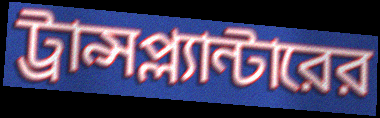
ট্রান্সপ্ল্যান্টারের